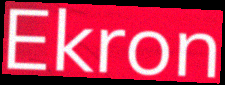
Ekron